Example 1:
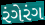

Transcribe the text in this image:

રંગેરંગ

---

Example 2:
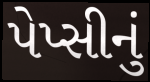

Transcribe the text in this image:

પેપ્સીનું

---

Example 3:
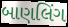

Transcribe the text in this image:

બાણલિંગ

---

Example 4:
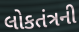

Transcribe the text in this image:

લોકતંત્રની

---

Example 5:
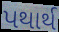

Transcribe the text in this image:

પથાર્થ